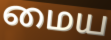
மைய